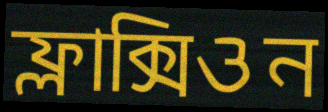
ফ্লাক্সিওন